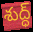
శుద్ధ్